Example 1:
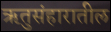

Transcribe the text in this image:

ऋतुसंहारातील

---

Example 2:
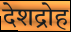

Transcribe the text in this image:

देशद्रोह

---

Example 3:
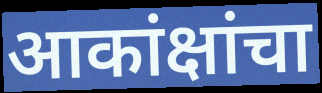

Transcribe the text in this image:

आकांक्षांचा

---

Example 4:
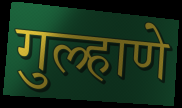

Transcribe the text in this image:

गुल्हाणे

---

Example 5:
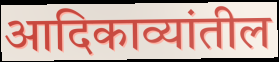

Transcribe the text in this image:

आदिकाव्यांतील